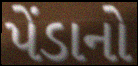
પેંડાનો